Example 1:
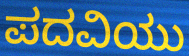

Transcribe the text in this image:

ಪದವಿಯು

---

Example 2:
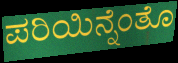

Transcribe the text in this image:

ಪರಿಯಿನ್ನೆಂತೊ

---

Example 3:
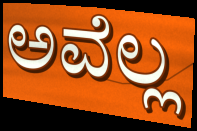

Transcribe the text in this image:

ಅವೆಲ್ಲ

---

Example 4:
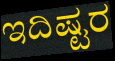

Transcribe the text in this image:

ಇದಿಷ್ಟರ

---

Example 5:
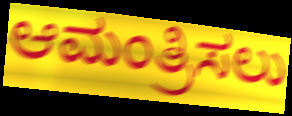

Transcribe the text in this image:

ಆಮಂತ್ರಿಸಲು